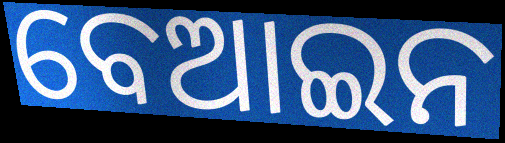
ବେଆଇନ